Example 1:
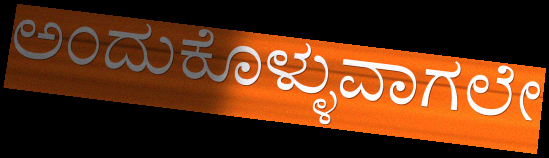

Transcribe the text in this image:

ಅಂದುಕೊಳ್ಳುವಾಗಲೇ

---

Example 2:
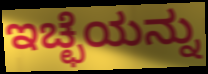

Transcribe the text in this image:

ಇಚ್ಛೆಯನ್ನು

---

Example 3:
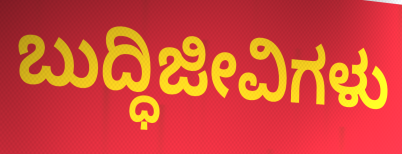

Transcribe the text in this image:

ಬುದ್ಧಿಜೀವಿಗಳು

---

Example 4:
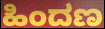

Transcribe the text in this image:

ಹಿಂದಣ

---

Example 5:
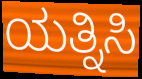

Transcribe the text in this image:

ಯತ್ನಿಸಿ